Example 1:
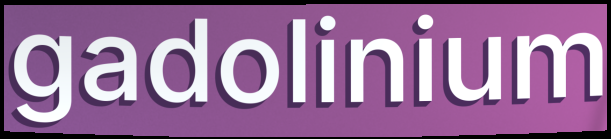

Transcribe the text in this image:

gadolinium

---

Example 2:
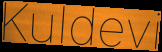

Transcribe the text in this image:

Kuldevi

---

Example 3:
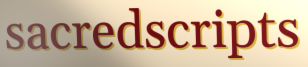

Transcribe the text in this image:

sacredscripts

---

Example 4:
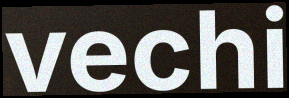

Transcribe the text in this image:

vechi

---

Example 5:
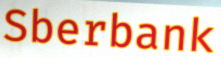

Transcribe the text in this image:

Sberbank